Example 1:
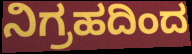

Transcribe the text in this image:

ನಿಗ್ರಹದಿಂದ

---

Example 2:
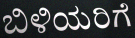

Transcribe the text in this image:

ಬಿಳಿಯರಿಗೆ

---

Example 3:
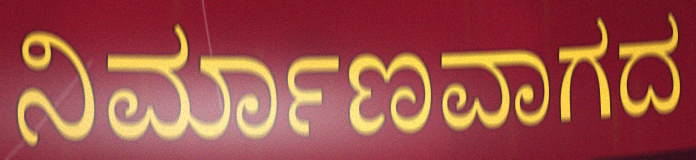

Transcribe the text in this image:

ನಿರ್ಮಾಣವಾಗದ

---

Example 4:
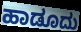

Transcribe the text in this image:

ಹಾಡೂದು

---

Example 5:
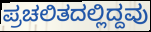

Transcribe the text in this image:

ಪ್ರಚಲಿತದಲ್ಲಿದ್ದವು